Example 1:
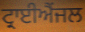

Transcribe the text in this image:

ਟ੍ਰਾਈਐਂਜਲ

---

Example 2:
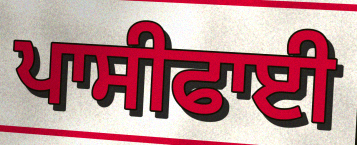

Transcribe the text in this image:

ਪਾਸੀਫਾਈ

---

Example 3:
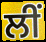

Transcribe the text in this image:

ਲੀਂ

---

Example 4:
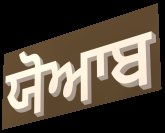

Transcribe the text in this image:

ਯੋਆਬ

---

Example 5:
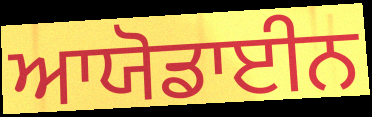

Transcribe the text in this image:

ਆਯੋਡਾਈਨ